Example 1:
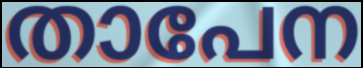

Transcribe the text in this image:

താപേന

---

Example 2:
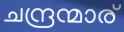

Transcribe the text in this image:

ചന്ദ്രന്മാര്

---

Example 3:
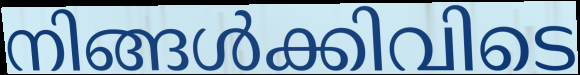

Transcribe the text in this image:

നിങ്ങൾക്കിവിടെ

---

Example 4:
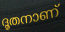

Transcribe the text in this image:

ദൂതനാണ്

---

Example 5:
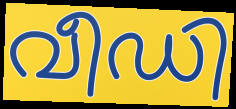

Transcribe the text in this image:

വീഡി